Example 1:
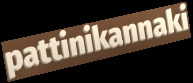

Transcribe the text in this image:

pattinikannaki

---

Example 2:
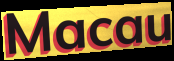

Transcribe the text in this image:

Macau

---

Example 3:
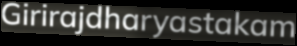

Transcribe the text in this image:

Girirajdharyastakam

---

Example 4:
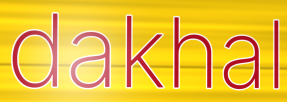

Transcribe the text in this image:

dakhal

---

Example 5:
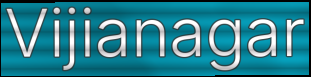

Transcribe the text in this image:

Vijianagar